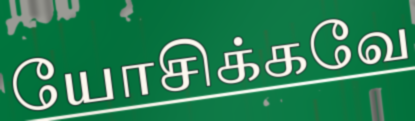
யோசிக்கவே